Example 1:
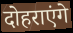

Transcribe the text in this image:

दोहराएंगे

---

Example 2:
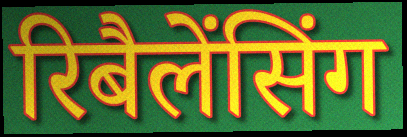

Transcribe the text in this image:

रिबैलेंसिंग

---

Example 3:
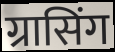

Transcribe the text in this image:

ग्रासिंग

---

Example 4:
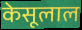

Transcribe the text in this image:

केसूलाल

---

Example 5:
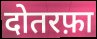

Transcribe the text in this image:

दोतरफ़ा